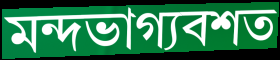
মন্দভাগ্যবশত